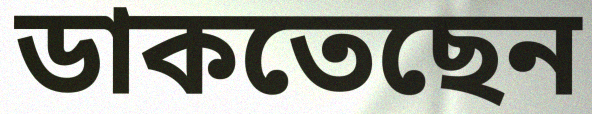
ডাকতেছেন